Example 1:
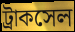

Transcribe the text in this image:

ট্রাকসেল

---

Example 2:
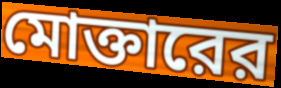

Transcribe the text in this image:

মোক্তারের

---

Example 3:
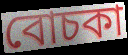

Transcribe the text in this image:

বোচকা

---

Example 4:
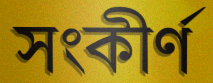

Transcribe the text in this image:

সংকীর্ণ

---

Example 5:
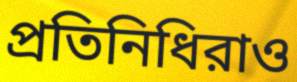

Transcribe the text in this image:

প্রতিনিধিরাও